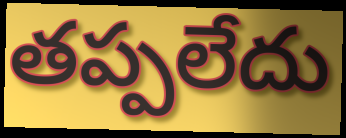
తప్పలేదు